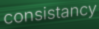
consistancy